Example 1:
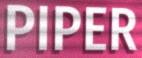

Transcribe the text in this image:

PIPER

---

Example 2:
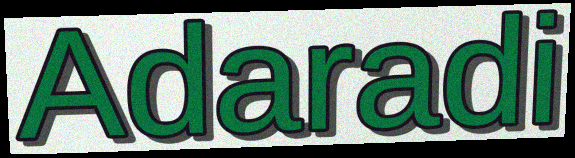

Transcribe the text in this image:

Adaradi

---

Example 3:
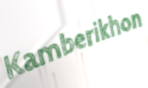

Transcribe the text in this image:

Kamberikhon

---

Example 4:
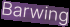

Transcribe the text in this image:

Barwing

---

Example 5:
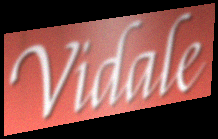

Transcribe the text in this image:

Vidale